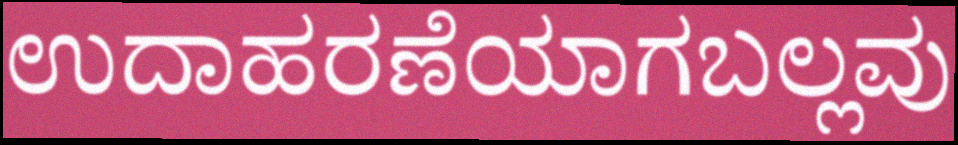
ಉದಾಹರಣೆಯಾಗಬಲ್ಲವು